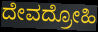
ದೇವದ್ರೋಹಿ